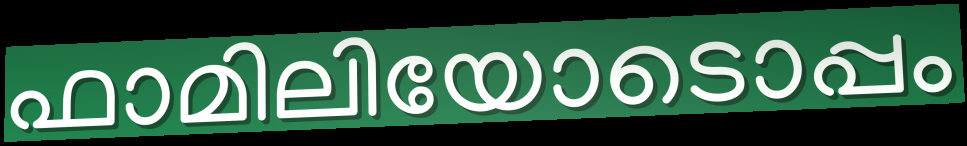
ഫാമിലിയോടൊപ്പം